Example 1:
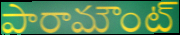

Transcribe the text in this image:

పారామౌంట్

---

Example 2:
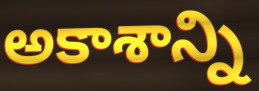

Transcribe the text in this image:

అకాశాన్ని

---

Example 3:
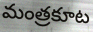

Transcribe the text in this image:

మంత్రకూట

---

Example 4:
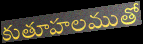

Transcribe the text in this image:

కుతూహలముతో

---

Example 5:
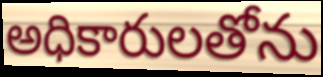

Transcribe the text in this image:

అధికారులతోను